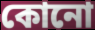
কোনো